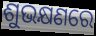
ଶୁଭକ୍ଷଣରେ